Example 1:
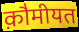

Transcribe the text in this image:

क़ौमीयत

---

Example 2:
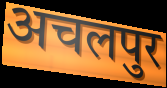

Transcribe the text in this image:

अचलपुर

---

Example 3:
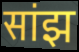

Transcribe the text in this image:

सांझ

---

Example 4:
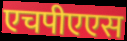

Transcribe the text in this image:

एचपीएएस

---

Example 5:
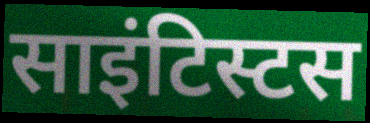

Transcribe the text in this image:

साइंटिस्टस